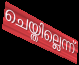
ചെയ്തില്ലെന്ന്